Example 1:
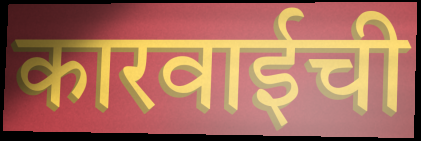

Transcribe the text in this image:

कारवाईची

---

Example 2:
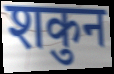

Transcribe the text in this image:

शकुन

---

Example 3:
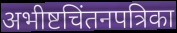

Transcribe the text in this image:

अभीष्टचिंतनपत्रिका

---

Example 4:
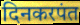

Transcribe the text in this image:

दिनकरपंत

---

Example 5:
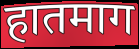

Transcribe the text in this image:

हातमाग